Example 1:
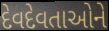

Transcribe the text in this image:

દેવદેવતાઓને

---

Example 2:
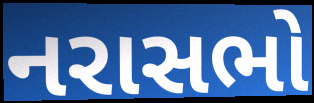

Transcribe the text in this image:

નરાસભો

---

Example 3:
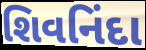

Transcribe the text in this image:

શિવનિંદા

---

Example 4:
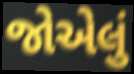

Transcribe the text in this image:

જોએલું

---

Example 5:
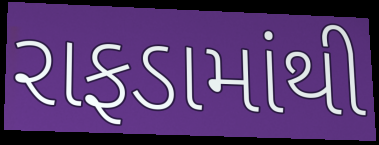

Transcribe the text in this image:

રાફડામાંથી